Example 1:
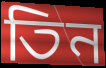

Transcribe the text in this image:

তিন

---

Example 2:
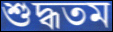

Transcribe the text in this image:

শুদ্ধতম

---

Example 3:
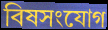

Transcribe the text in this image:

বিষসংযোগ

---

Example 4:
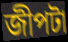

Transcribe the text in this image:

জীপটা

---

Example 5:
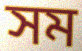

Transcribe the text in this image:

সম